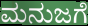
ಮನುಜಗೆ